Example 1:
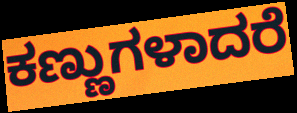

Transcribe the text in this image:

ಕಣ್ಣುಗಳಾದರೆ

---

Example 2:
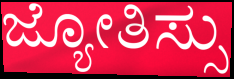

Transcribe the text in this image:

ಜ್ಯೋತಿಸ್ಸು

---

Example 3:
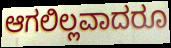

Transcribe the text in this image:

ಆಗಲಿಲ್ಲವಾದರೂ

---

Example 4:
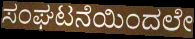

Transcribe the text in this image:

ಸಂಘಟನೆಯಿಂದಲೇ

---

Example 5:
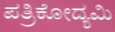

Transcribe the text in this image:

ಪತ್ರಿಕೋದ್ಯಮಿ